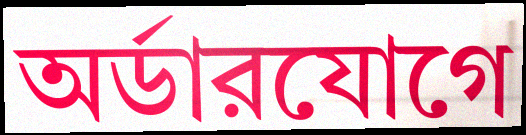
অর্ডারযোগে